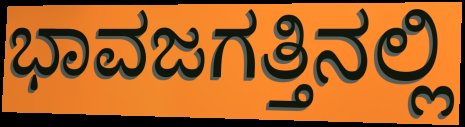
ಭಾವಜಗತ್ತಿನಲ್ಲಿ